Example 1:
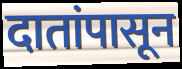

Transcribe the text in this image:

दातांपासून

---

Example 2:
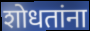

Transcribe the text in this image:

शोधतांना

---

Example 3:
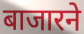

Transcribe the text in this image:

बाजारने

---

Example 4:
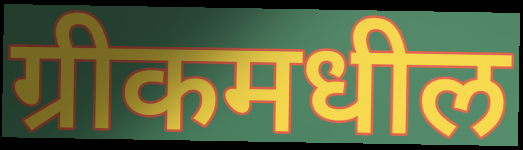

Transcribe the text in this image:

ग्रीकमधील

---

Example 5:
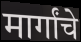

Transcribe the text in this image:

मार्गांचे